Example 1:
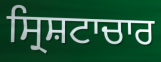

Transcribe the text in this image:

ਸ੍ਰਿਸ਼ਟਾਚਾਰ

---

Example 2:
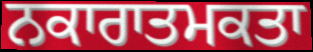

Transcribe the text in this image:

ਨਕਾਰਾਤਮਕਤਾ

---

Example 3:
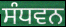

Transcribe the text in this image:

ਸੰਧਵਨ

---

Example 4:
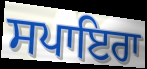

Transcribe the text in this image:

ਸਪਾਇਰਾ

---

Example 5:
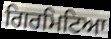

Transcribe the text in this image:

ਗਿਰਮਿਟਿਆ